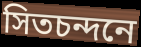
সিতচন্দনে